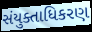
સંયુક્તાધિકરણ